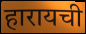
हारायची